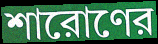
শারোণের